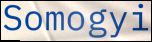
Somogyi